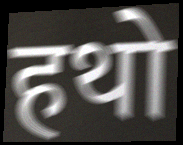
हथो